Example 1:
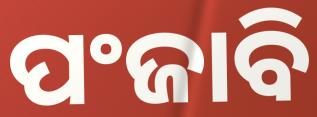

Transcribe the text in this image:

ପଂଜାବି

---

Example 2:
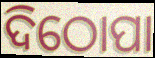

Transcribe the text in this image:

ଦିଠୋପା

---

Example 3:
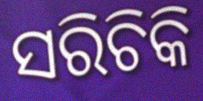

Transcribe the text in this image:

ସରିଚିକି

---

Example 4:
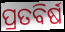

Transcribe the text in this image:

ପ୍ରତବିର୍ଷ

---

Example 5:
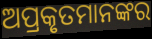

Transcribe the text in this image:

ଅପ୍ରକୃତମାନଙ୍କର